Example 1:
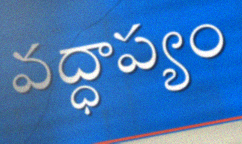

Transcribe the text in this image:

వద్ధాప్యం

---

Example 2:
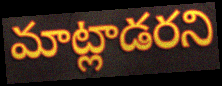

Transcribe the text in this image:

మాట్లాడరని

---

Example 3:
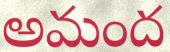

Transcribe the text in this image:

అమంద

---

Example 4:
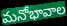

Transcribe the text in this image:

మనోభావాల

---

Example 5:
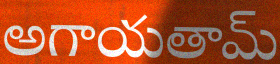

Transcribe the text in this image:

అగాయతామ్